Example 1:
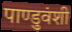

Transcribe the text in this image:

पाण्डुवंशी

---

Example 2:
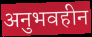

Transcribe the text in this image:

अनुभवहीन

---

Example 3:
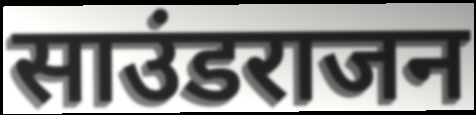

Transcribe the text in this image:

साउंडराजन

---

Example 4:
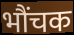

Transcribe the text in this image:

भौंचक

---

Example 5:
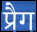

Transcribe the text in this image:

प्रैग